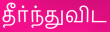
தீர்ந்துவிட